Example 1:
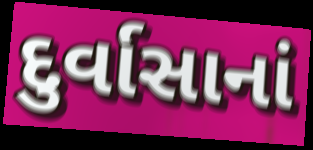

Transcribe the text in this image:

દુર્વાસાનાં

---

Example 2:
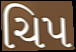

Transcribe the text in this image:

ચિપ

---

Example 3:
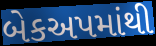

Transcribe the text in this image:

બેકઅપમાંથી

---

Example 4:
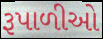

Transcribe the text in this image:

રૂપાળીઓ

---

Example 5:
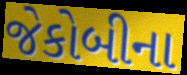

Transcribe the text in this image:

જેકોબીના